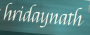
hridaynath